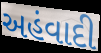
અહંવાદી